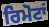
ਰਿਮੋਟਾਂ